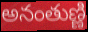
అనంతుణ్ణి